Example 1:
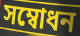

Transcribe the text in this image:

সম্বোধন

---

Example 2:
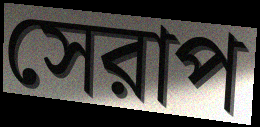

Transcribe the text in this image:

সেরাপ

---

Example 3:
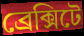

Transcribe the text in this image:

ব্রেক্সিটে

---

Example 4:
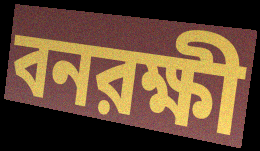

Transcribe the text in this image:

বনরক্ষী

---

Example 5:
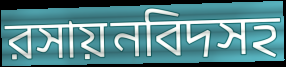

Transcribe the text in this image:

রসায়নবিদসহ